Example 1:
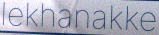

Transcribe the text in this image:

lekhanakke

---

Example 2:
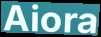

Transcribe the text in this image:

Aiora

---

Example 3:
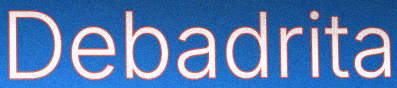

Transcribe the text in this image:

Debadrita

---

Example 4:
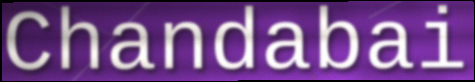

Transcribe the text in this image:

Chandabai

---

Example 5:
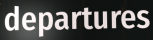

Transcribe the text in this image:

departures